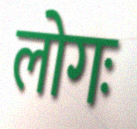
लोगः